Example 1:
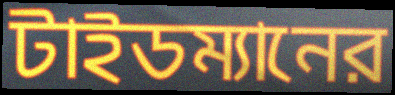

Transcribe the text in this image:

টাইডম্যানের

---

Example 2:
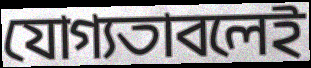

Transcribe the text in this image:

যোগ্যতাবলেই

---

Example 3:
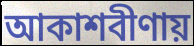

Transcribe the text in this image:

আকাশবীণায়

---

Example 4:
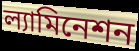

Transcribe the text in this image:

ল্যামিনেশন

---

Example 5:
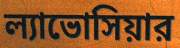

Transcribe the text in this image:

ল্যাভোসিয়ার